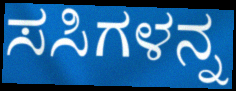
ಸಸಿಗಳನ್ನ